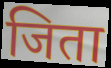
जिता